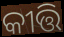
କୀତ୍ତି